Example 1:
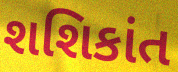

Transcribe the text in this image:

શશિકાંત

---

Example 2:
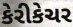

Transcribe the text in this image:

કેરીકેચર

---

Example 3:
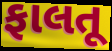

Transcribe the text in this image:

ફાલતૂ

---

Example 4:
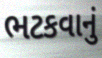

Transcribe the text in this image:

ભટકવાનું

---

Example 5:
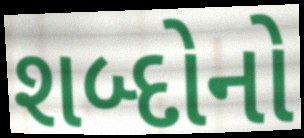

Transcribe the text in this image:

શબ્દોનો